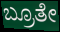
ಬ್ರೂತೇ